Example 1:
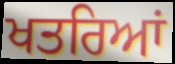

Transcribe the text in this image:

ਖਤਰਿਆਂ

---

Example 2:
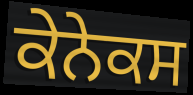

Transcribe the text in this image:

ਕੇਨੇਕਸ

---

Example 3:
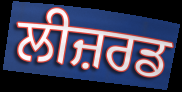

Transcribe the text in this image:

ਲੀਜ਼ਰਡ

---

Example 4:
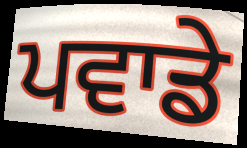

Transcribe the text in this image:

ਪਵਾਡੇ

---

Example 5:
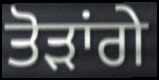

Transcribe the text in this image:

ਤੋੜਾਂਗੇ